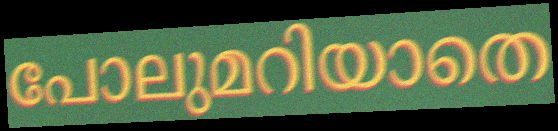
പോലുമറിയാതെ